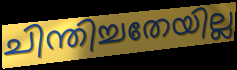
ചിന്തിച്ചതേയില്ല